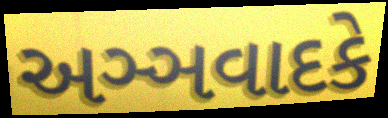
અઞ્ઞવાદકે